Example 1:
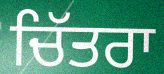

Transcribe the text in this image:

ਚਿੱਤਰਾ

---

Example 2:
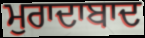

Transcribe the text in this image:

ਮੁਰਾਦਾਬਾਦ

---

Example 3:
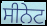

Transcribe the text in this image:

ਸੀਨੇਟ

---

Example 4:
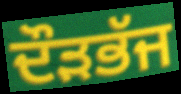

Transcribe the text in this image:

ਦੌੜਭੱਜ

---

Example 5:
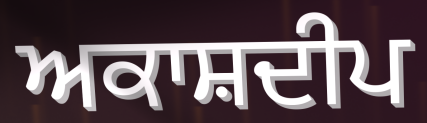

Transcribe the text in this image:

ਅਕਾਸ਼ਦੀਪ